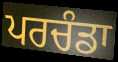
ਪਰਚੰਡਾ